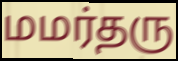
மமர்தரு